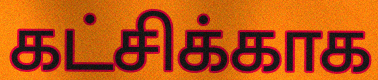
கட்சிக்காக